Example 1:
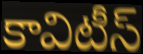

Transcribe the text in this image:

కావిటీస్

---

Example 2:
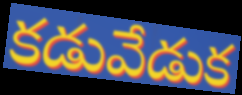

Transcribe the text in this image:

కడువేడుక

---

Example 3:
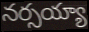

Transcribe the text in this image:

నర్సయ్యా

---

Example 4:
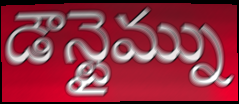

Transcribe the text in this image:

డౌన్టైమ్ను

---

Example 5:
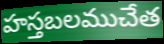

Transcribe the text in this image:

హస్తబలముచేత